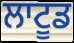
ਲਾਟੂਡ